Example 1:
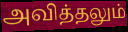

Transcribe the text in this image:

அவித்தலும்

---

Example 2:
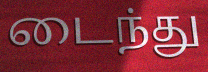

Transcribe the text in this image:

டைந்து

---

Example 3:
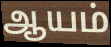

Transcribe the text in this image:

ஆயம்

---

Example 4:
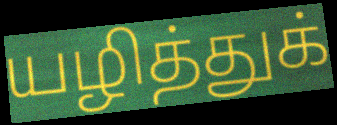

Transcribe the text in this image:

யழித்துக்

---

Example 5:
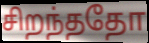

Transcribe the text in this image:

சிறந்ததோ